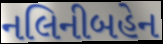
નલિનીબહેન